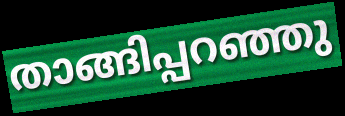
താങ്ങിപ്പറഞ്ഞു